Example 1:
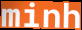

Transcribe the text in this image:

minh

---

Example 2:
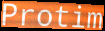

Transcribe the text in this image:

Protim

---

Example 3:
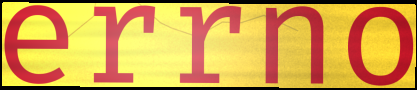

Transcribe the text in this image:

errno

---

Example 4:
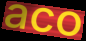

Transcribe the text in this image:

aco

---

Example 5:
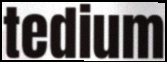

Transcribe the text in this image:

tedium